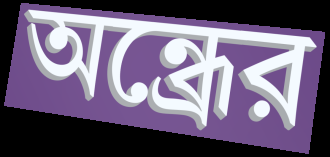
অন্ধ্রের